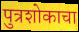
पुत्रशोकाचा